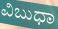
ವಿಬುಧಾ